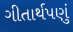
ગીતાર્થપણું